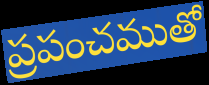
ప్రపంచముతో